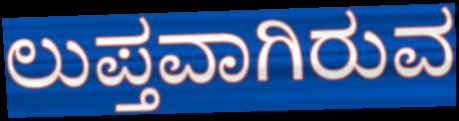
ಲುಪ್ತವಾಗಿರುವ